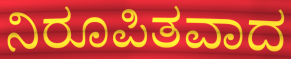
ನಿರೂಪಿತವಾದ